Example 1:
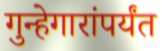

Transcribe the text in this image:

गुन्हेगारांपर्यंत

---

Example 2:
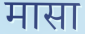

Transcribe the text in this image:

मासा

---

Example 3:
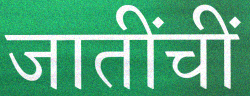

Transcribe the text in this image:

जातींचीं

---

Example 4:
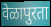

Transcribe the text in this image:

वेळापुरता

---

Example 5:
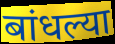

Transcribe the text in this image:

बांधल्या